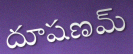
దూషణమ్